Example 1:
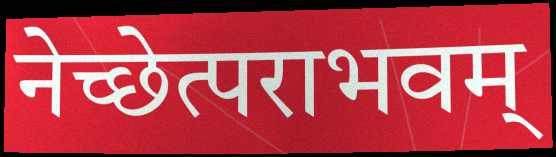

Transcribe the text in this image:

नेच्छेत्पराभवम्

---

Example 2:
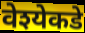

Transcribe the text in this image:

वेश्येकडे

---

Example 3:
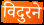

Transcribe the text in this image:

विदुरने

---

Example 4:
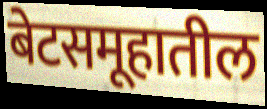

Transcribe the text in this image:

बेटसमूहातील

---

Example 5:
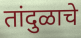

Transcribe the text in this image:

तांदुळाचे